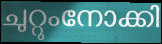
ചുറ്റുംനോക്കി